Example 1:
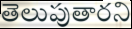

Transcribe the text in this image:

తెలుపుతారని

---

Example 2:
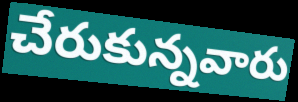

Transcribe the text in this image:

చేరుకున్నవారు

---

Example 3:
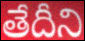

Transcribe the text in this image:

తేదీని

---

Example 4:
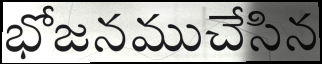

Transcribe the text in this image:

భోజనముచేసిన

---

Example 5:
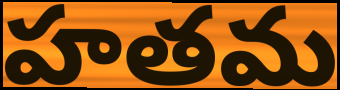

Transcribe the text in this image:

హతమ